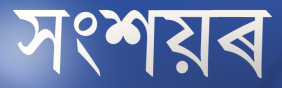
সংশয়ৰ